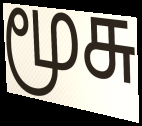
மூசு